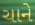
ચાને